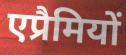
एप्रैमियों